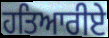
ਹਤਿਆਰੀਏ